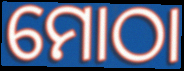
ମୋଠା